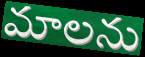
మాలను